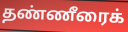
தண்ணீரைக்